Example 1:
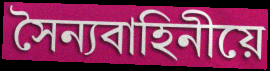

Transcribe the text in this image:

সৈন্যবাহিনীয়ে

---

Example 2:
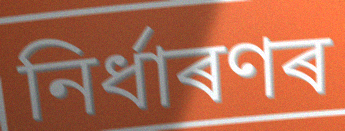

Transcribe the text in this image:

নিৰ্ধাৰণৰ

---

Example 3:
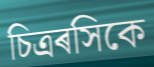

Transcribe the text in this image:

চিত্ৰৰসিকে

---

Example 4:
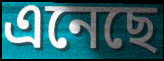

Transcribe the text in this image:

এনেছে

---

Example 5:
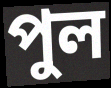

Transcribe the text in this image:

পুল